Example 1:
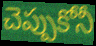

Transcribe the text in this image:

చెప్పుకోనీ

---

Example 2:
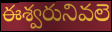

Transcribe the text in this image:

ఈశ్వరునివలె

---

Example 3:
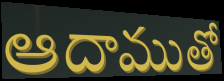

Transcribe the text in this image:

ఆదాముతో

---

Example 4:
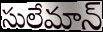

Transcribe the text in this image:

సులేమాన్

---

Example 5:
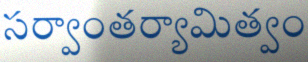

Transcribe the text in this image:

సర్వాంతర్యామిత్వం